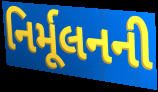
નિર્મૂલનની